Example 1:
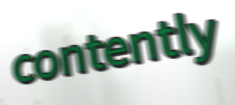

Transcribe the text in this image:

contently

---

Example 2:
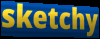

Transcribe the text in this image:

sketchy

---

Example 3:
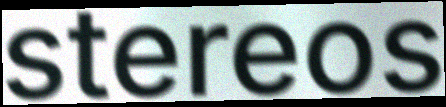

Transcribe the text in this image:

stereos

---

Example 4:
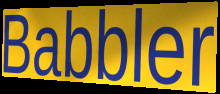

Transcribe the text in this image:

Babbler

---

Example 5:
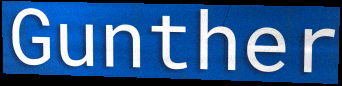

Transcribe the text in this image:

Gunther